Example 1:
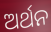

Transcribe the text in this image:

ଅର୍ଥନ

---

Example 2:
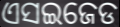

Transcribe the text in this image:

ଏସଇଜେଡ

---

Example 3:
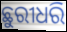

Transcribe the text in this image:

ଛୁରୀଧରି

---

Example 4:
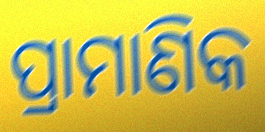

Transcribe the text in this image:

ପ୍ରାମାଣିକ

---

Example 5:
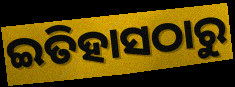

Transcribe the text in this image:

ଇତିହାସଠାରୁ